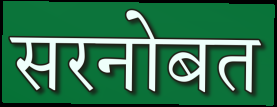
सरनोबत